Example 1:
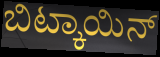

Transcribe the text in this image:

ಬಿಟ್ಕಾಯಿನ್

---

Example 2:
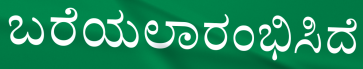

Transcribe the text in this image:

ಬರೆಯಲಾರಂಭಿಸಿದೆ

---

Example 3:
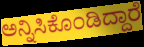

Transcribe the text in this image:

ಅನ್ನಿಸಿಕೊಂಡಿದ್ದಾರೆ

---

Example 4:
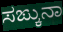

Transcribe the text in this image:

ಸಙ್ಕುನಾ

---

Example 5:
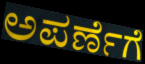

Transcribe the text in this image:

ಅಪರ್ಣೆಗೆ